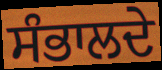
ਸੰਭਾਲਦੇ